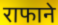
राफाने